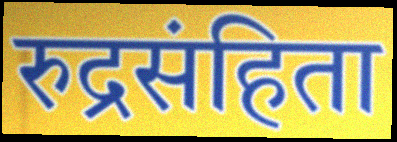
रुद्रसंहिता